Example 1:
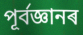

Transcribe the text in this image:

পূৰ্বজ্ঞানৰ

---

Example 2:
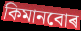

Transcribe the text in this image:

কিমানবোৰ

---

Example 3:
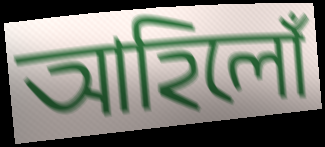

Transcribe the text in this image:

আহিলোঁ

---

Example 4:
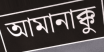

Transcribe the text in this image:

আমানাক্কু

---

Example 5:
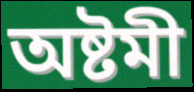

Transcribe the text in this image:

অষ্টমী